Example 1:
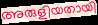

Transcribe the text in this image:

അരുളിയതായി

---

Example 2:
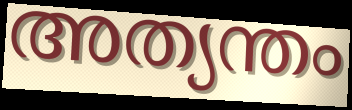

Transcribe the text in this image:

അത്യന്തം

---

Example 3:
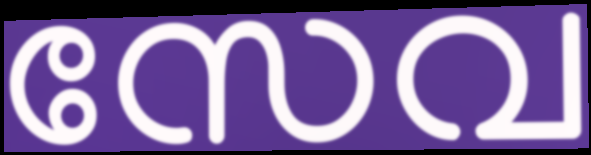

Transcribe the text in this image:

സേവ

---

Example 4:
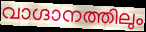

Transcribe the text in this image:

വാഗ്ദാനത്തിലും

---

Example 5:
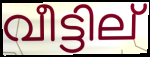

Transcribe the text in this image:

വീട്ടില്